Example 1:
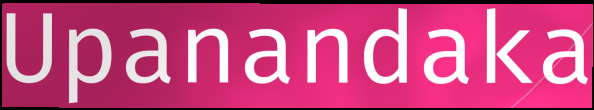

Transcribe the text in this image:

Upanandaka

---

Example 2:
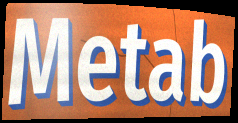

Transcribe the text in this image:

Metab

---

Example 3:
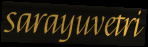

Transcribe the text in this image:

sarayuvetri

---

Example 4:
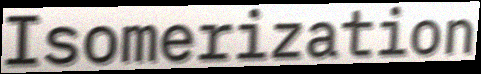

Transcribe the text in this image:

Isomerization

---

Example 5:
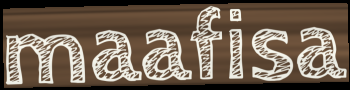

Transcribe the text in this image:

maafisa